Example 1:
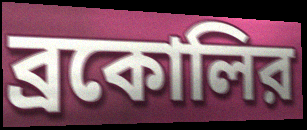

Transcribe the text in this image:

ব্রকোলির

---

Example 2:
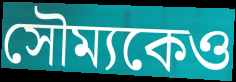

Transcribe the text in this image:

সৌম্যকেও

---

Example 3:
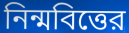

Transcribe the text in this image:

নিন্মবিত্তের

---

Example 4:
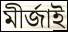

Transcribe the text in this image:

মীর্জাই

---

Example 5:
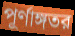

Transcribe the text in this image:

পূর্ণাঙ্গতর